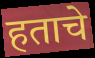
हताचे